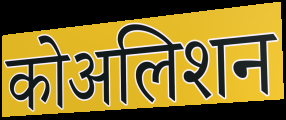
कोअलिशन